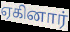
ஏகினார்